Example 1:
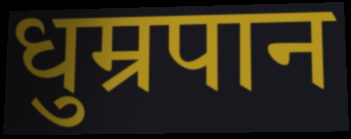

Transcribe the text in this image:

धुम्रपान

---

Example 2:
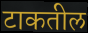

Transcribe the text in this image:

टाकतील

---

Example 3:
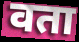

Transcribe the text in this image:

वता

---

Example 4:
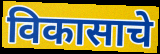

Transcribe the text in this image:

विकासाचे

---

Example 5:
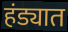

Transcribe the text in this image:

हंड्यात